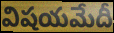
విషయమేదీ